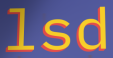
lsd